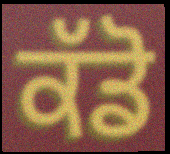
ਕੱਡੋ